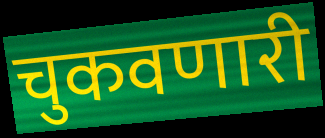
चुकवणारी